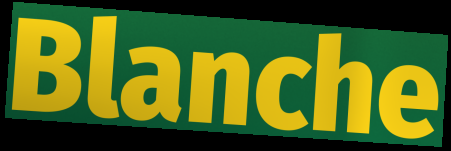
Blanche